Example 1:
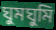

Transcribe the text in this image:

ঘুমঘুমি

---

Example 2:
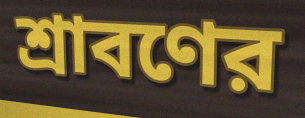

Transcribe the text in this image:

শ্রাবণের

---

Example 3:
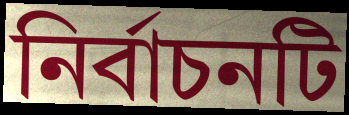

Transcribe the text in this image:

নির্বাচনটি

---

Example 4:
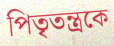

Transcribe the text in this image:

পিতৃতন্ত্রকে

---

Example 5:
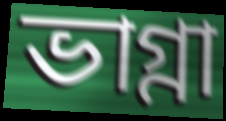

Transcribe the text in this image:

ভাগ্না